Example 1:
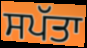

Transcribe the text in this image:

ਸਪੱਤਾ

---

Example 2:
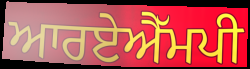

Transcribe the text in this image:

ਆਰਏਐੱਮਪੀ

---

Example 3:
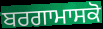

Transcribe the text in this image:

ਬਰਗਾਮਾਸਕੋ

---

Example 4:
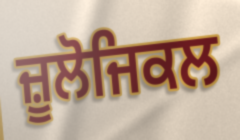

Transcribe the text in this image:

ਜ਼ੂਲੋਜਿਕਲ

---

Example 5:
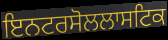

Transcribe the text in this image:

ਇਨਟਰਸੋਲਲਾਸਟਿਕ